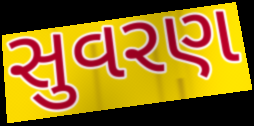
સુવરણ